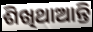
ଶିଖିଥାଆନ୍ତି